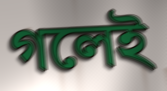
গলেই